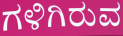
ಗಳಿಗಿರುವ